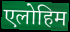
एलोहिम